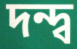
দন্দ্ব